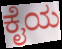
ಕೈಯ